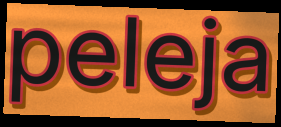
peleja